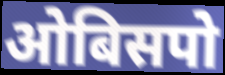
ओबिसपो